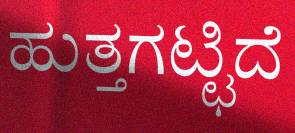
ಹುತ್ತಗಟ್ಟಿದೆ